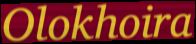
Olokhoira